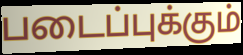
படைப்புக்கும்